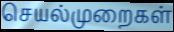
செயல்முறைகள்